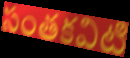
సంతకవిటి